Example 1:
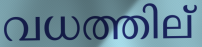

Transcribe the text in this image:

വധത്തില്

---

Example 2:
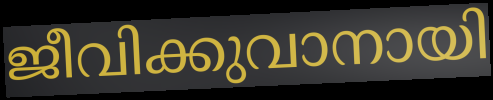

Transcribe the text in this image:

ജീവിക്കുവാനായി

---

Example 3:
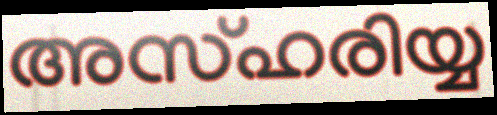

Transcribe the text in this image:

അസ്ഹരിയ്യ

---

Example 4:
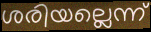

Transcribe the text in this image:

ശരിയല്ലെന്ന്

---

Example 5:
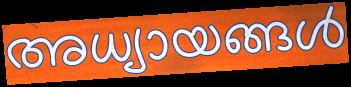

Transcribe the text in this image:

അധ്യായങ്ങൾ